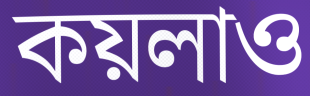
কয়লাও